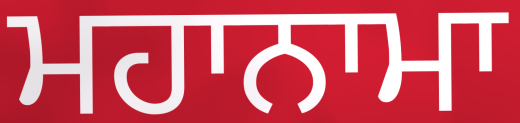
ਮਹਾਨਾਮਾ